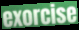
exorcise